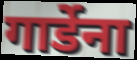
गार्डेना